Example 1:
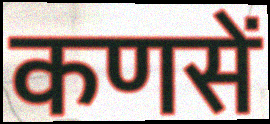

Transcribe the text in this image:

कणसें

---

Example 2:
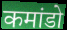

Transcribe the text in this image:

कमांडो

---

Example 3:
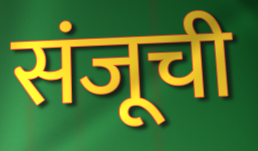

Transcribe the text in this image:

संजूची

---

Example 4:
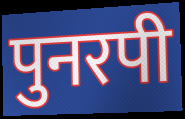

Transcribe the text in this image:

पुनरपी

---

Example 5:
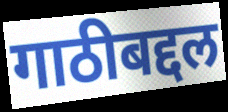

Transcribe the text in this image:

गाठीबद्दल